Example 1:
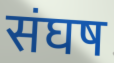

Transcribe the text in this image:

संघष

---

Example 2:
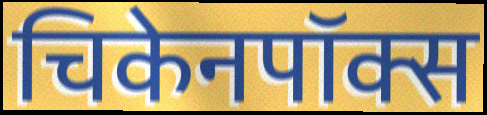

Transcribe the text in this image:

चिकेनपॉक्स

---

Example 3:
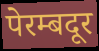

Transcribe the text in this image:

पेरम्बदूर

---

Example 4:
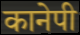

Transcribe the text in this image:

कानेपी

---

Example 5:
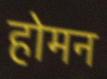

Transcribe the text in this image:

होमन